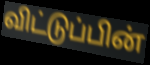
விட்டுப்பின்